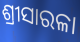
ଶ୍ରୀସାରଳା